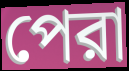
পেরা